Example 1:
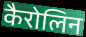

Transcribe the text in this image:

कैरोलिन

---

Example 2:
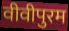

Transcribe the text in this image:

वीवीपुरम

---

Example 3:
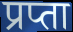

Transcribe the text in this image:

प्रप्ता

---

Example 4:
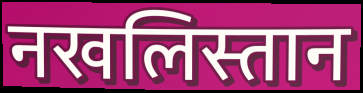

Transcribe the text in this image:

नखलिस्तान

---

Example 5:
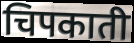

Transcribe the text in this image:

चिपकाती